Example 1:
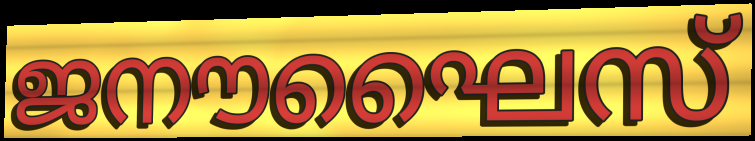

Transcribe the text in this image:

ജനൗഘൈസ്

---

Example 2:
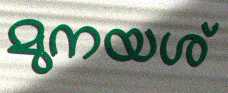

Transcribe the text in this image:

മുനയശ്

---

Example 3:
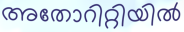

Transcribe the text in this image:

അതോറിറ്റിയിൽ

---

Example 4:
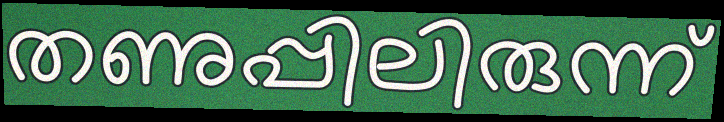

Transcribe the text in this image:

തണുപ്പിലിരുന്ന്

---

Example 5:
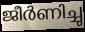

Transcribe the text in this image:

ജീർണിച്ചു